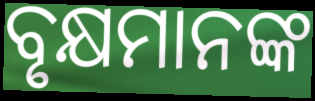
ବୃକ୍ଷମାନଙ୍କ